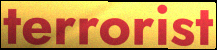
terrorist